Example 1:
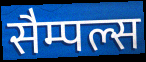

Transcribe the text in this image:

सैम्‍पल्‍स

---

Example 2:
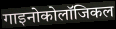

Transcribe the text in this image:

गाइनोकोलॉजिकल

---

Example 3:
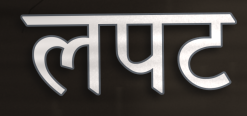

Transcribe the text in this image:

लपट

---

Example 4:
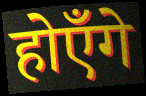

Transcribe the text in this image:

होएँगे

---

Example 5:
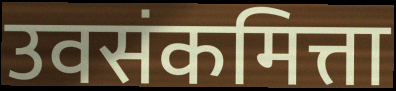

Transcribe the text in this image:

उवसंकमित्ता